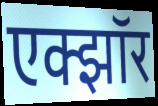
एक्झॉर